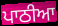
ਪਾਠੀਆ